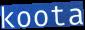
koota